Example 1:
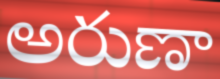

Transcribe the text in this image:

అరుణా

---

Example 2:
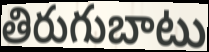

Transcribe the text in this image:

తిరుగుబాటు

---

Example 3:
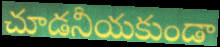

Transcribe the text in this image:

చూడనీయకుండా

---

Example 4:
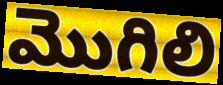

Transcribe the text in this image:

మొగిలి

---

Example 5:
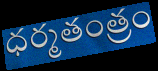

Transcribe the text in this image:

ధర్మతంత్రం